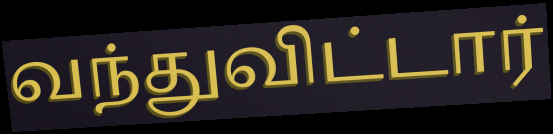
வந்துவிட்டார்